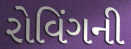
રોવિંગની